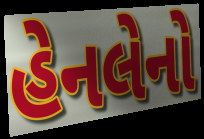
હેનલેનો